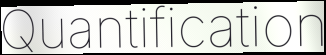
Quantification